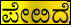
ಪೇೞದೆ